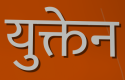
युक्तेन